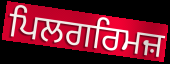
ਪਿਲਗਰਿਮਜ਼